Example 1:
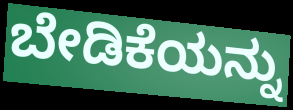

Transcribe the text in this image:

ಬೇಡಿಕೆಯನ್ನು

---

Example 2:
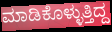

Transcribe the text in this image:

ಮಾಡಿಕೊಳ್ಳುತ್ತಿದ್ದ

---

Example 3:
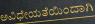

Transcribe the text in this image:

ಅವಿಧೇಯತೆಯಿಂದಾಗಿ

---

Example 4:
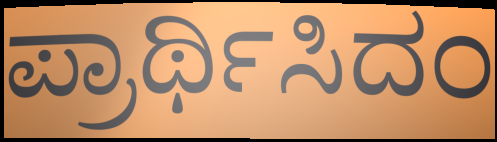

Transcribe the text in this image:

ಪ್ರಾರ್ಥಿಸಿದಂ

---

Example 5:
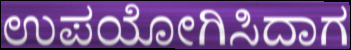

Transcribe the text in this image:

ಉಪಯೋಗಿಸಿದಾಗ